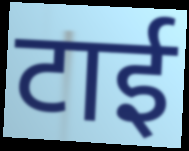
टाई